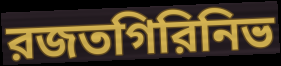
রজতগিরিনিভ